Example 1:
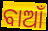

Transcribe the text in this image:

ବାଆଁ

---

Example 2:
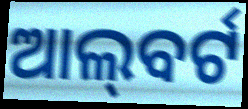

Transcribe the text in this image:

ଆଲ୍‌ବର୍ଟ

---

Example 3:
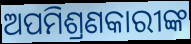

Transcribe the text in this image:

ଅପମିଶ୍ରଣକାରୀଙ୍କ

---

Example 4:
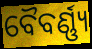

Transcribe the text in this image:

ବୈବର୍ଣ୍ଣ୍ୟ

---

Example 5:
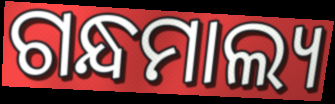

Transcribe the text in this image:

ଗନ୍ଧମାଲ୍ୟ